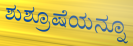
ಶುಶ್ರೂಷೆಯನ್ನೂ